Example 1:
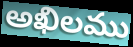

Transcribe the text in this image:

అఖిలము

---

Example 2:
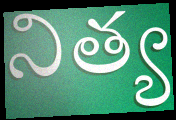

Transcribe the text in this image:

నిత్య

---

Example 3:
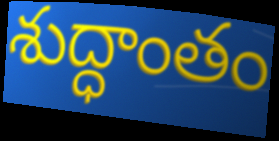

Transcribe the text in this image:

శుద్ధాంతం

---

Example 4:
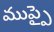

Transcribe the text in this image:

ముప్పై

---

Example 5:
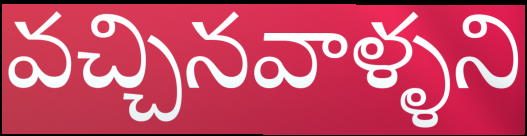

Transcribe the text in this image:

వచ్చినవాళ్ళని